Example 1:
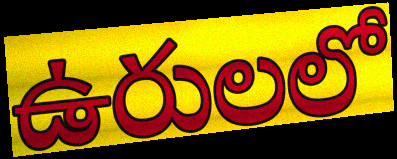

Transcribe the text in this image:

ఉరులలో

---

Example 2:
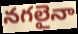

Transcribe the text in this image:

నగలైనా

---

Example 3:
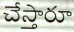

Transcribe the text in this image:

చేస్తారూ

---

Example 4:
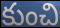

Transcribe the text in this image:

కుంచి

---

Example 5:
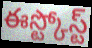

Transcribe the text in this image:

ఈస్ట్కోస్ట్